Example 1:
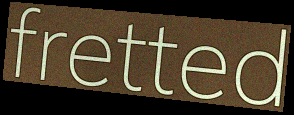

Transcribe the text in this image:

fretted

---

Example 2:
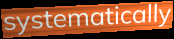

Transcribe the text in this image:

systematically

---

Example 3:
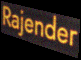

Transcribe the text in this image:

Rajender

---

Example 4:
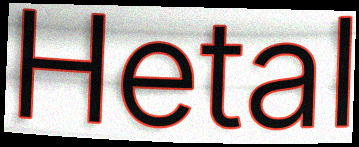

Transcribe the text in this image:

Hetal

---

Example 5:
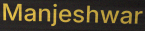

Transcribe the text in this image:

Manjeshwar